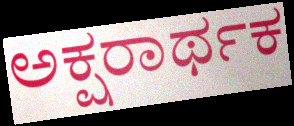
ಅಕ್ಷರಾರ್ಥಕ